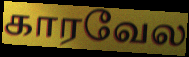
காரவேல